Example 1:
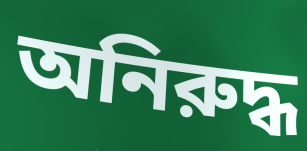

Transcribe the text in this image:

অনিরুদ্ধ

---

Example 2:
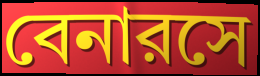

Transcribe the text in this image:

বেনারসে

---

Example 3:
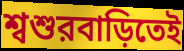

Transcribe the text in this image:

শ্বশুরবাড়িতেই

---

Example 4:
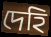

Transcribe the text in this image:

দেহি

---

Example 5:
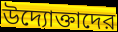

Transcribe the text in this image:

উদ্যোক্তাদের